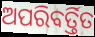
ଅପରିବର୍ତ୍ତିତ